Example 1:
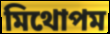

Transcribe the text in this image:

মিথোপম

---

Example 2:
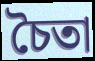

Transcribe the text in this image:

চৈতা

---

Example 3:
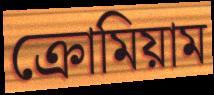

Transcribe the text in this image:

ক্রোমিয়াম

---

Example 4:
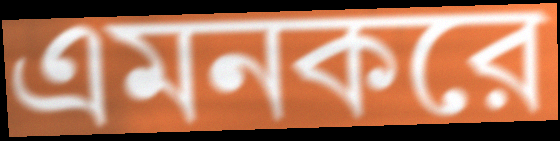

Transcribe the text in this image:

এমনকরে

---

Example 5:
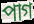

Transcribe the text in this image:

পাগ